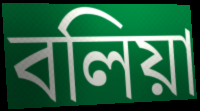
বলিয়া